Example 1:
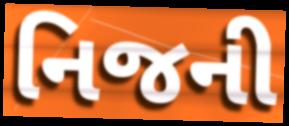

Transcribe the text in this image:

નિજની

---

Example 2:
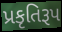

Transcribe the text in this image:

પ્રકૃતિરૂપ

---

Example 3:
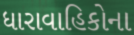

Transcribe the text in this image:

ધારાવાહિકોના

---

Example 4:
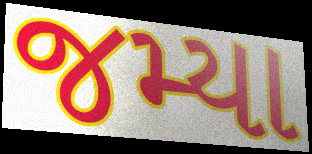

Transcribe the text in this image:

જમ્યા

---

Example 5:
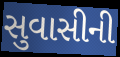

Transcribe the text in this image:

સુવાસીની